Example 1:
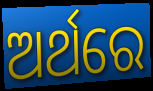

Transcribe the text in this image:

ଅର୍ଥରେ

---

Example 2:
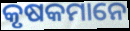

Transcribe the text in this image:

କୃଷକମାନେ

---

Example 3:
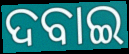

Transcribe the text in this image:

ଦବାଇ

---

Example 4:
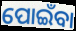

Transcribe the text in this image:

ପୋଇଁବା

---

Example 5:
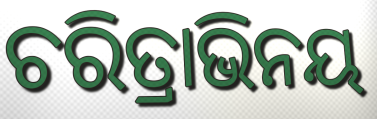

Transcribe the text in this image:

ଚରିତ୍ରାଭିନୟ